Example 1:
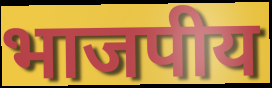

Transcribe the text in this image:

भाजपीय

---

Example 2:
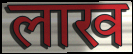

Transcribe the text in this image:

लाख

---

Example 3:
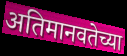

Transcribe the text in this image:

अतिमानवतेच्या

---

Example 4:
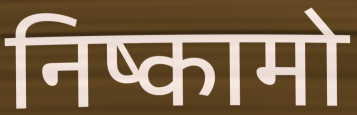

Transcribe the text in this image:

निष्कामो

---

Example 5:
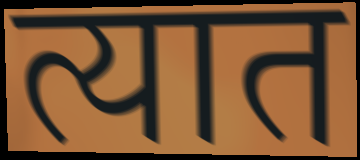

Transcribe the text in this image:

त्यात